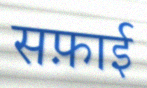
सफ़ाई